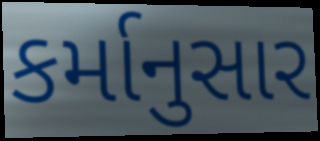
કર્માનુસાર